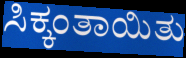
ಸಿಕ್ಕಂತಾಯಿತು